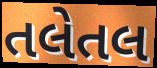
તલેતલ